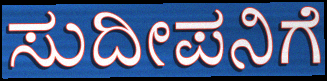
ಸುದೀಪನಿಗೆ